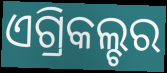
ଏଗ୍ରିକଲ୍ଚର